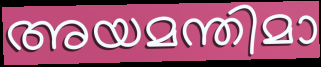
അയമന്തിമാ